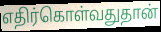
எதிர்கொள்வதுதான்